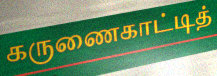
கருணைகாட்டித்